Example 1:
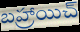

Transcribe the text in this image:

బహ్రాయిచ్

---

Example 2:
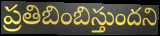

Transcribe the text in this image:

ప్రతిబింబిస్తుందని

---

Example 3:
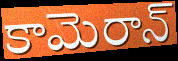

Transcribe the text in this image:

కామెరాన్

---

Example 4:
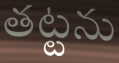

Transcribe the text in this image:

తట్టను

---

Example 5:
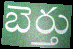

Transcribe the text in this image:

బెర్తు